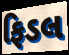
ફિડલ